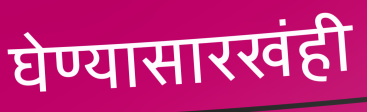
घेण्यासारखंही